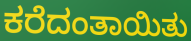
ಕರೆದಂತಾಯಿತು